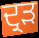
ਦ੍ਰੜ